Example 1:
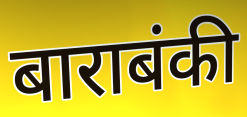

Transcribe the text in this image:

बाराबंकी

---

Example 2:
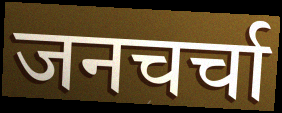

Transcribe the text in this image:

जनचर्चा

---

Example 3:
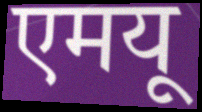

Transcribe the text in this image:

एमयू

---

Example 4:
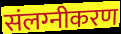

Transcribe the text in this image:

संलग्‍नीकरण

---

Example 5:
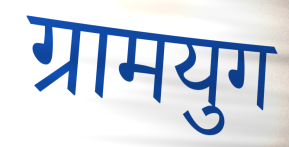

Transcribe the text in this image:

ग्रामयुग